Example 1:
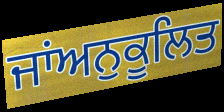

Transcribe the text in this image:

ਜਾਂਅਨੁਕੂਲਿਤ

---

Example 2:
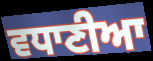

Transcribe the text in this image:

ਵਧਾਣੀਆ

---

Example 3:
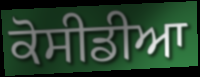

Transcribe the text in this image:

ਕੋਸੀਡੀਆ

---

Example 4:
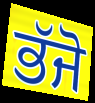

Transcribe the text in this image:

ਭੱਜੋ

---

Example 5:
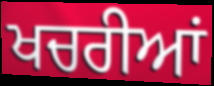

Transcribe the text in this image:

ਖਚਰੀਆਂ